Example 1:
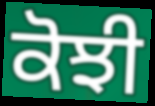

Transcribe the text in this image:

ਕੋਝੀ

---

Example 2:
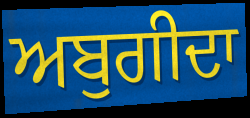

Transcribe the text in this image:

ਅਬੁਗੀਦਾ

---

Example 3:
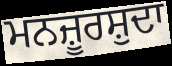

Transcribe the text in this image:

ਮਨਜ਼ੂਰਸ਼ੁਦਾ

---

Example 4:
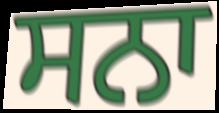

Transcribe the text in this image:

ਸਨਾ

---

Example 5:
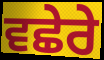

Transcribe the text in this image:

ਵਛੇਰੇ